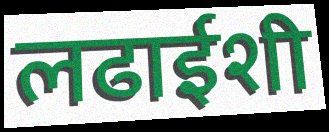
लढाईशी